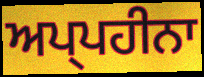
ਅਪ੍ਪਹੀਨਾ